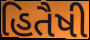
હિતૈષી